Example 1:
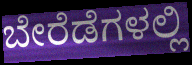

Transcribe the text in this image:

ಬೇರೆಡೆಗಳಲ್ಲಿ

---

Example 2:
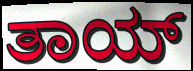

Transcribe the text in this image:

ತಾಯ್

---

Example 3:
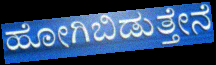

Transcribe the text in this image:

ಹೋಗಿಬಿಡುತ್ತೇನೆ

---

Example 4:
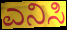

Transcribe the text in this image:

ಎನಿಸಿ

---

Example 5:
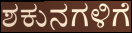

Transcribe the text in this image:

ಶಕುನಗಳಿಗೆ